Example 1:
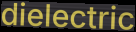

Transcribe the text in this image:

dielectric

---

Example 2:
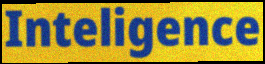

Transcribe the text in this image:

Inteligence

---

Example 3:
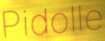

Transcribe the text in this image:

Pidolle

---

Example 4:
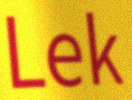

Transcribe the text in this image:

Lek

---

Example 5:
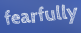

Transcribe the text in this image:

fearfully